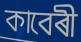
কাবেৰী